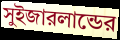
সুইজারলান্ডের